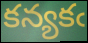
కన్యకఁ